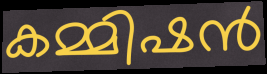
കമ്മിഷൻ